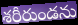
శరీరుండను